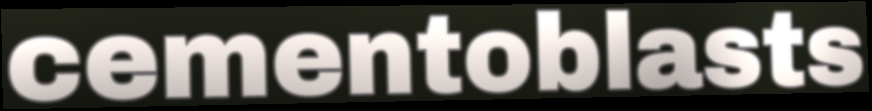
cementoblasts